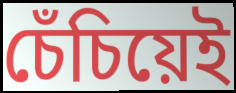
চেঁচিয়েই